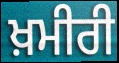
ਖ਼ਮੀਰੀ